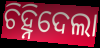
ଚିହ୍ନିଦେଲା